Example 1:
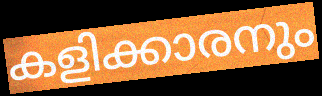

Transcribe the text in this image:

കളിക്കാരനും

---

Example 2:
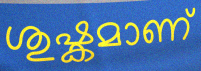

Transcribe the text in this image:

ശുഷ്കമാണ്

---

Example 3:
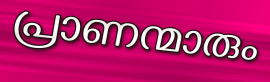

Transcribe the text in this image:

പ്രാണന്മാരും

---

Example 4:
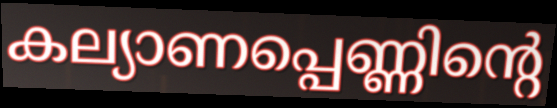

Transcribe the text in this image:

കല്യാണപ്പെണ്ണിന്റെ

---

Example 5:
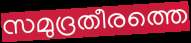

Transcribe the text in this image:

സമുദ്രതീരത്തെ